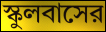
স্কুলবাসের